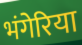
भंगेरिया